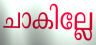
ചാകില്ലേ